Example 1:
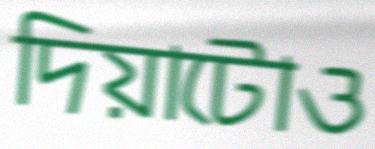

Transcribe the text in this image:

দিয়াটোও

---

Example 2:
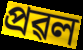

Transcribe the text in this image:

প্ৰৱল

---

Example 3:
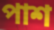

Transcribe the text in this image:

পাশ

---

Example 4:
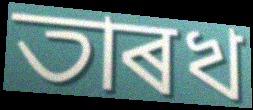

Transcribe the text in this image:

তাৰখ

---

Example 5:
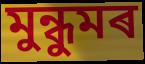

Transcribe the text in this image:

মুন্ধুমৰ